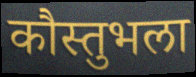
कौस्तुभला